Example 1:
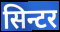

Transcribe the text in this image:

सिन्टर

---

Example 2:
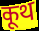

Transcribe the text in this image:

कूथ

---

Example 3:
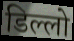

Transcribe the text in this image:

डिल्लो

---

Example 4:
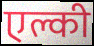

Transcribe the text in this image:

एल्की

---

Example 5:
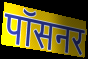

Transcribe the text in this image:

पॉसनर